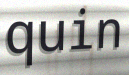
quin